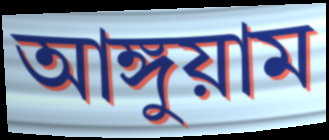
আঙ্গুয়াম